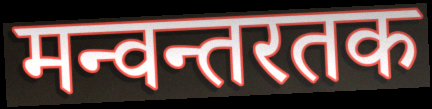
मन्वन्तरतक